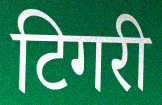
टिगरी